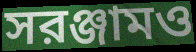
সরঞ্জামও